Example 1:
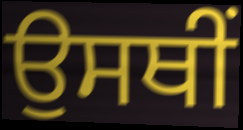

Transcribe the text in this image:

ਉਸਥੀਂ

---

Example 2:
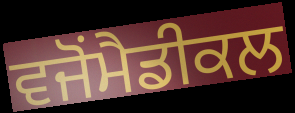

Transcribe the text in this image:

ਵਜੋਂਮੈਡੀਕਲ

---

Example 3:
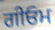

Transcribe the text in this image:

ਗੀਓਮ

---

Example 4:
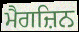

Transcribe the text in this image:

ਮੈਗਜ਼ਿਨ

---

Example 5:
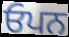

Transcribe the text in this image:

ਓਪਨ